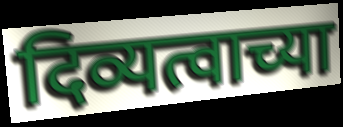
दिव्यत्वाच्या